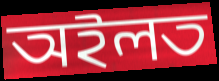
অইলত